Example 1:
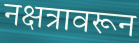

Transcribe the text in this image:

नक्षत्रावरून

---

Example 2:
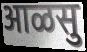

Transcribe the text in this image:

आळसु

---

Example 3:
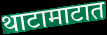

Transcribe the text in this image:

थाटामाटात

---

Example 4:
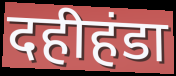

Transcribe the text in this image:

दहीहंडा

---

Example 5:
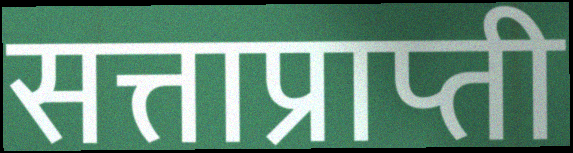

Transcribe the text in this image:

सत्ताप्राप्ती